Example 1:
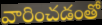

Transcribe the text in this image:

వారించడంతో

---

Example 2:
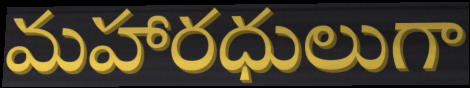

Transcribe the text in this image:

మహారధులుగా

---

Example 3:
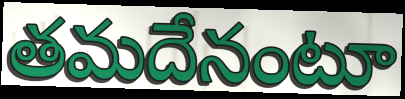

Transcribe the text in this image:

తమదేనంటూ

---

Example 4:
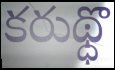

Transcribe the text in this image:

కరుథ్ధొ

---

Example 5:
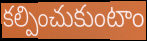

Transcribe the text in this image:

కల్పించుకుంటాం